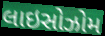
લાઇસોઝોમ